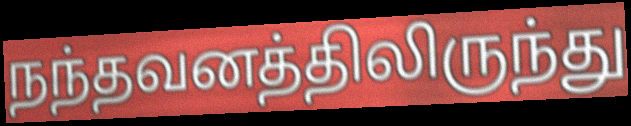
நந்தவனத்திலிருந்து